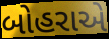
બોહરાએ